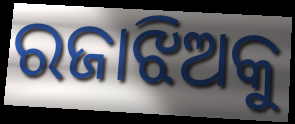
ରଜାଝିଅକୁ